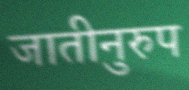
जातीनुरुप